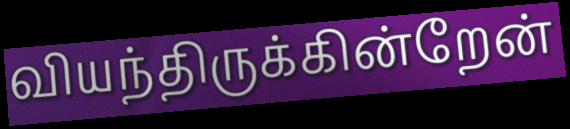
வியந்திருக்கின்றேன்